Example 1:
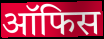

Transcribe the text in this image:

ऑफिस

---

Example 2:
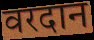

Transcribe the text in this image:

वरदान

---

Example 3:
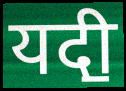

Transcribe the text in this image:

यदी॒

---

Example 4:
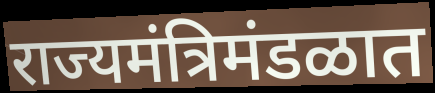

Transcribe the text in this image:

राज्यमंत्रिमंडळात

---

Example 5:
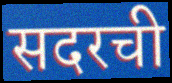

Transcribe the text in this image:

सदरची